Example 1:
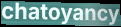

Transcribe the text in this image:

chatoyancy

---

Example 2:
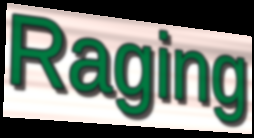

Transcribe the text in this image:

Raging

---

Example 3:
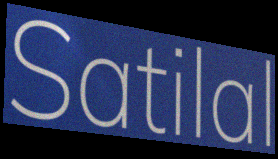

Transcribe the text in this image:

Satilal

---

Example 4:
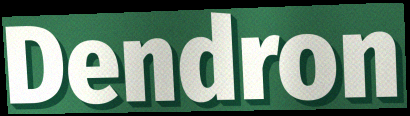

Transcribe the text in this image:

Dendron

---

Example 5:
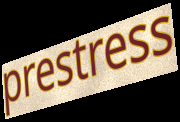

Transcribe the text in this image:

prestress